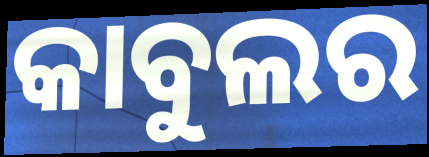
କାବୁଲର